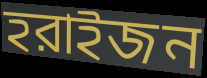
হরাইজন